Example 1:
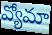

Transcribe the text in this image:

వ్యోమా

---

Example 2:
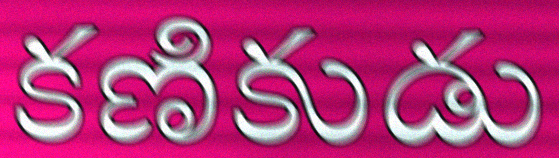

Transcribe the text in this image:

కణికుడు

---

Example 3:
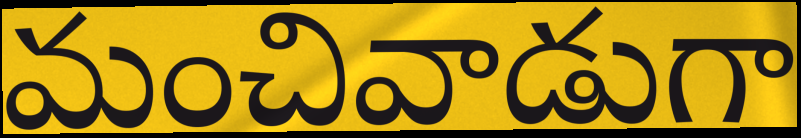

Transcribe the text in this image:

మంచివాడుగా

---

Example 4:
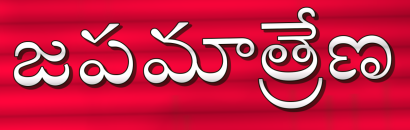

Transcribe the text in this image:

జపమాత్రేణ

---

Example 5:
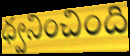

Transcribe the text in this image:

ధ్వనించింది